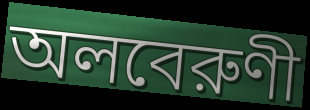
অলবেরুণী